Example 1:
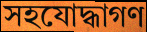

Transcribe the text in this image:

সহযোদ্ধাগণ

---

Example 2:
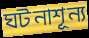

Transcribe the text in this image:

ঘটনাশূন্য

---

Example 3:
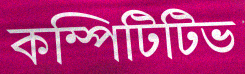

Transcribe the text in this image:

কম্পিটিটিভ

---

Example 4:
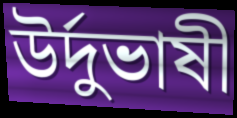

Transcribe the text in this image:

উর্দুভাষী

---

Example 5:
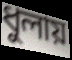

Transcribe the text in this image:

ধুলায়